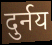
दुर्नय